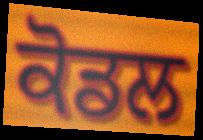
ਕੋਡਲ